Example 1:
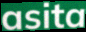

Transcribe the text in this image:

asita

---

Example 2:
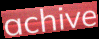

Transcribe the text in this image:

achive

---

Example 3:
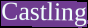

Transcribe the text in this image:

Castling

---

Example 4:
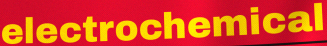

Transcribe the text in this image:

electrochemical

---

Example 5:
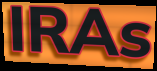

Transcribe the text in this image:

IRAs